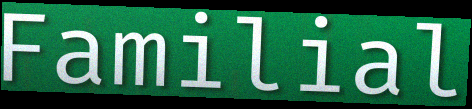
Familial